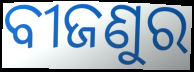
ବୀଜଣୁର